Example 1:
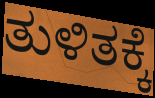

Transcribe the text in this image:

ತುಳಿತಕ್ಕೆ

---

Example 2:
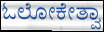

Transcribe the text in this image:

ಓಲೋಕೇತ್ವಾ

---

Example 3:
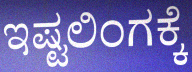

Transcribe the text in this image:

ಇಷ್ಟಲಿಂಗಕ್ಕೆ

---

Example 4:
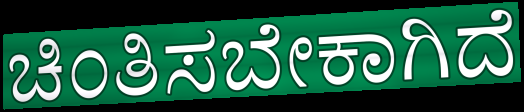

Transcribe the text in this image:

ಚಿಂತಿಸಬೇಕಾಗಿದೆ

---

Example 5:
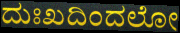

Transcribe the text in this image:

ದುಃಖದಿಂದಲೋ